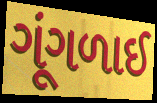
ગૂંગળાઈ